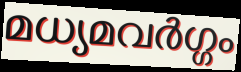
മധ്യമവർഗ്ഗം